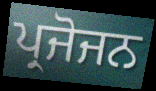
ਪ੍ਰਜੋਜਨ